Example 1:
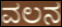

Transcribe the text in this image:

ವಲನ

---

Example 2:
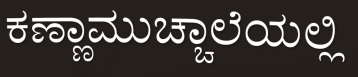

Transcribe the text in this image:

ಕಣ್ಣಾಮುಚ್ಚಾಲೆಯಲ್ಲಿ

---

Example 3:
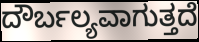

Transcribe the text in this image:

ದೌರ್ಬಲ್ಯವಾಗುತ್ತದೆ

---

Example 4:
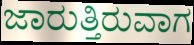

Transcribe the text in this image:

ಜಾರುತ್ತಿರುವಾಗ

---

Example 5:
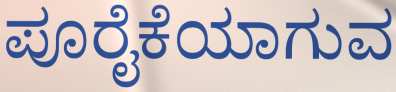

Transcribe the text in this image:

ಪೂರೈಕೆಯಾಗುವ